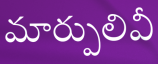
మార్పులివీ